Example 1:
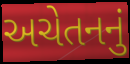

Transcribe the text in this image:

અચેતનનું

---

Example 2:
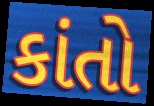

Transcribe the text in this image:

કાંતો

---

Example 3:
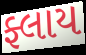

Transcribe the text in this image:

ફ્લાય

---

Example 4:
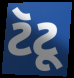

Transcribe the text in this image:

ટૅટૂ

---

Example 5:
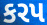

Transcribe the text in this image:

કરપ